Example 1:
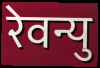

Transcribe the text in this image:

रेवन्यु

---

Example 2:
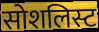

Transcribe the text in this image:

सोशलिस्‍ट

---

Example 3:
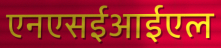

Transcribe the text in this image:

एनएसईआईएल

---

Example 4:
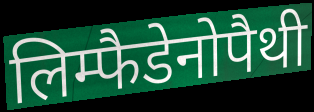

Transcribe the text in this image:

लिम्फैडेनोपैथी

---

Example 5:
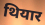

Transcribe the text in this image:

थियार